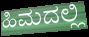
ಹಿಮದಲ್ಲಿ